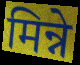
मिन्ने